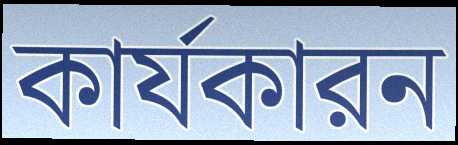
কার্যকারন